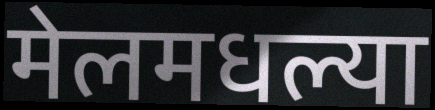
मेलमधल्या